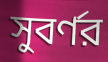
সুবর্ণর